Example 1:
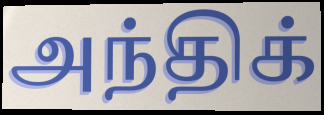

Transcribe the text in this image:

அந்திக்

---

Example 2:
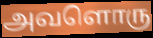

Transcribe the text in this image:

அவளொரு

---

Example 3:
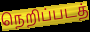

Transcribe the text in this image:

நெறிப்படத்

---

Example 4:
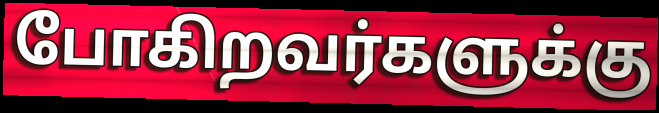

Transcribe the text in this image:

போகிறவர்களுக்கு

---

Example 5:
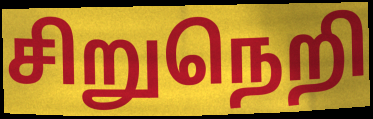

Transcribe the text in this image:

சிறுநெறி